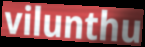
vilunthu